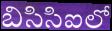
బిసిసిఐలో